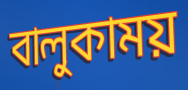
বালুকাময়